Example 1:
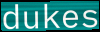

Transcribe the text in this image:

dukes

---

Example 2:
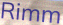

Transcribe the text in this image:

Rimm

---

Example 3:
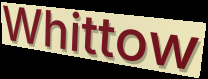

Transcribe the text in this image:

Whittow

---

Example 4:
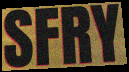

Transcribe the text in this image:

SFRY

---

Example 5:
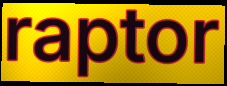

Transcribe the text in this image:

raptor